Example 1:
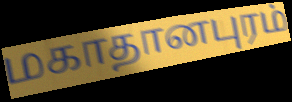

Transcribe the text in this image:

மகாதானபுரம்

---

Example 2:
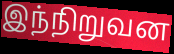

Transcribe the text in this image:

இந்நிறுவன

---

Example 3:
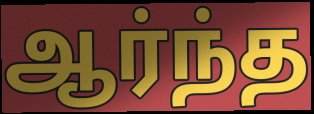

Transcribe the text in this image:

ஆர்ந்த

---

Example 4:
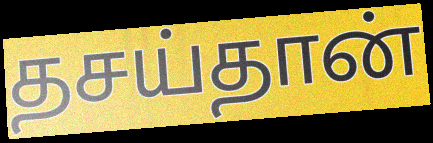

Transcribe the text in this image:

தசய்தான்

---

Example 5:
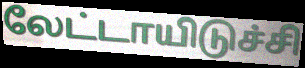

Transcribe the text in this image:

லேட்டாயிடுச்சி